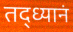
तद्ध्यानं